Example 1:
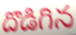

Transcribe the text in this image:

దొడిగిన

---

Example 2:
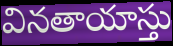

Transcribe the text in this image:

వినతాయాస్తు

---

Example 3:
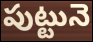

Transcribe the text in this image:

పుట్టునె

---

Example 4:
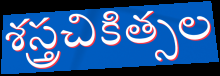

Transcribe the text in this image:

శస్త్రచికిత్సల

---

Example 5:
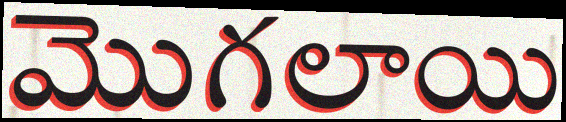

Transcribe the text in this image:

మొగలాయి